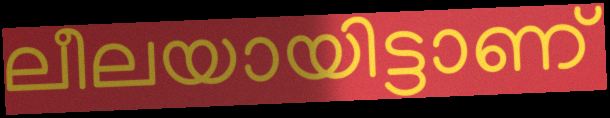
ലീലയായിട്ടാണ്